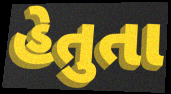
હેતુતા